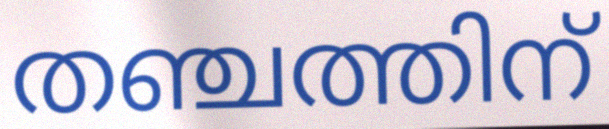
തഞ്ചത്തിന്